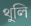
থুলি